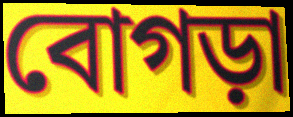
বোগড়া